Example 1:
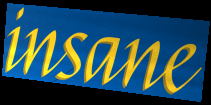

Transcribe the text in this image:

insane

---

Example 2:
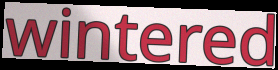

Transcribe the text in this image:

wintered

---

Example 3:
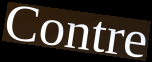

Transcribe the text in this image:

Contre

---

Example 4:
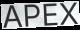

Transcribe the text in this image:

APEX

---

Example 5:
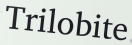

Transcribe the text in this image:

Trilobite